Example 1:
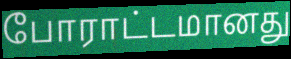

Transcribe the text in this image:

போராட்டமானது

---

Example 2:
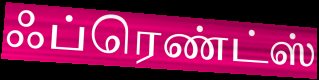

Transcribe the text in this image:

ஃப்ரெண்ட்ஸ்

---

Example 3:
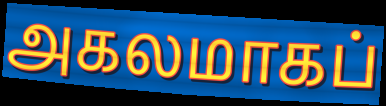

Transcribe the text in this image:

அகலமாகப்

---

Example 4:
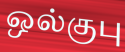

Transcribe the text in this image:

ஒல்குபு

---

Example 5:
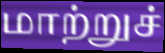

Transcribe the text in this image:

மாற்றுச்